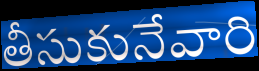
తీసుకునేవారి